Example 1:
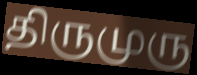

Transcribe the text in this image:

திருமுரு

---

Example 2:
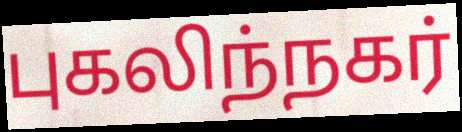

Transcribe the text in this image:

புகலிந்நகர்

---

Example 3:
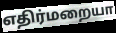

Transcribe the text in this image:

எதிர்மறையா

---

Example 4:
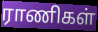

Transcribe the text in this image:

ராணிகள்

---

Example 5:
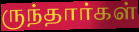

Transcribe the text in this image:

ருந்தார்கள்